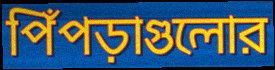
পিঁপড়াগুলোর